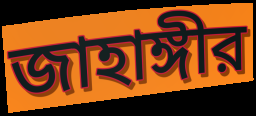
জাহাঙ্গীর